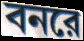
বনরে